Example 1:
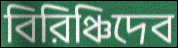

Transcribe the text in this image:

বিরিঞ্চিদেব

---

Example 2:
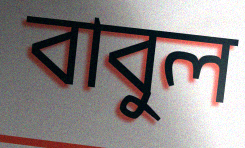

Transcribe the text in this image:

বাবুল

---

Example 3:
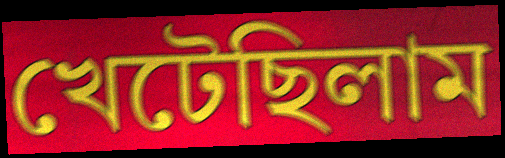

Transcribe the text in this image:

খেটেছিলাম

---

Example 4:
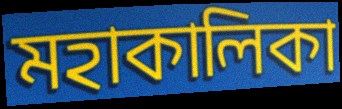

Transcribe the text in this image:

মহাকালিকা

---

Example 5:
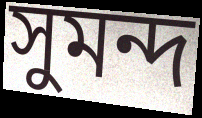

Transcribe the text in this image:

সুমন্দ